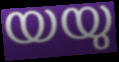
യയു